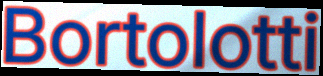
Bortolotti